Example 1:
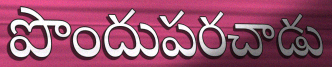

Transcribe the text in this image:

పొందుపరచాడు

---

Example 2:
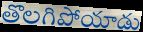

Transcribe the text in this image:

తొలగిపోయాడు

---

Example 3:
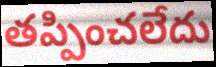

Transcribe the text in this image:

తప్పించలేదు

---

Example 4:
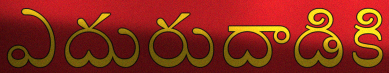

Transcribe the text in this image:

ఎదురుదాడికి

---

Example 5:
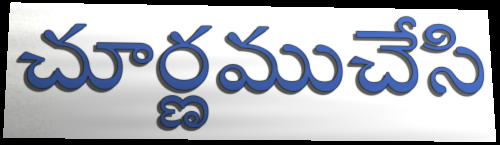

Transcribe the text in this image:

చూర్ణముచేసి